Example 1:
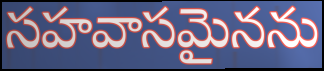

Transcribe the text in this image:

సహవాసమైనను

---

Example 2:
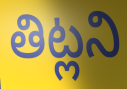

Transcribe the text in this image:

తిట్లని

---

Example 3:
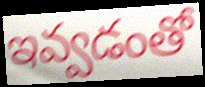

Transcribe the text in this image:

ఇవ్వడంతో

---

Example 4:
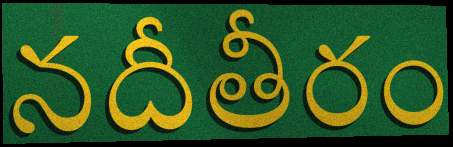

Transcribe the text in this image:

నదీతీరం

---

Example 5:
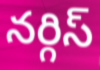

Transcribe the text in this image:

నర్గిస్